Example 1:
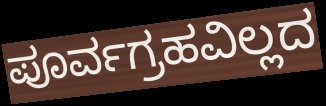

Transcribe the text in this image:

ಪೂರ್ವಗ್ರಹವಿಲ್ಲದ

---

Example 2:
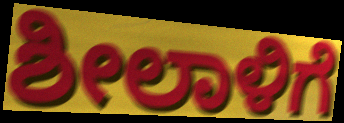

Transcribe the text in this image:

ಶೀಲಾಳಿಗೆ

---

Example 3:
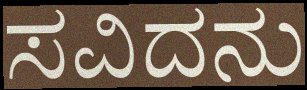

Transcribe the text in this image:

ಸವಿದನು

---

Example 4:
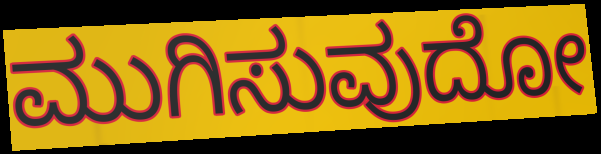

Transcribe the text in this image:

ಮುಗಿಸುವುದೋ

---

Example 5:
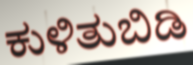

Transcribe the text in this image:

ಕುಳಿತುಬಿಡಿ